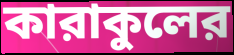
কারাকুলের